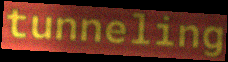
tunneling